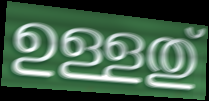
ഉള്ളതു്